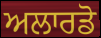
ਅਲਾਰਡੋ